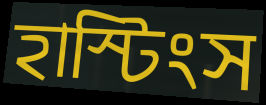
হাস্টিংস